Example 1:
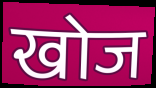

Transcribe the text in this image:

खोज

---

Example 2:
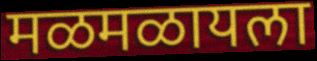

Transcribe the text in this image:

मळमळायला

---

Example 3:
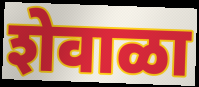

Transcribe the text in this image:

शेवाळा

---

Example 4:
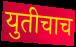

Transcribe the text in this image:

युतीचाच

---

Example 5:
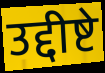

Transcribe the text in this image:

उद्दीष्टे